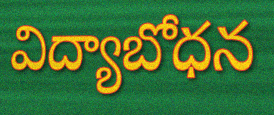
విద్యాబోధన